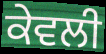
ਕੇਵਲੀ